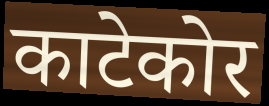
काटेकोर